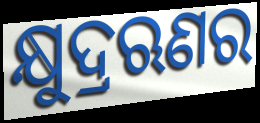
କ୍ଷୁଦ୍ରଋଣର